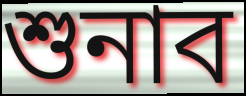
শুনাব